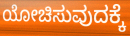
ಯೋಚಿಸುವುದಕ್ಕೆ